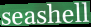
seashell